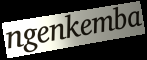
ngenkemba